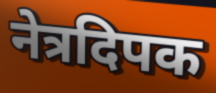
नेत्रदिपक